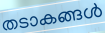
തടാകങ്ങൾ